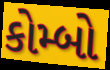
કોમ્બો